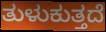
ತುಳುಕುತ್ತದೆ